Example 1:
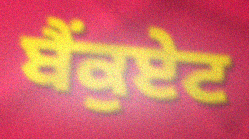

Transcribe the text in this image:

ਬੈਂਕੁਏਟ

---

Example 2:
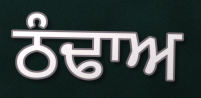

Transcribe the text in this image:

ਠੰਢਾਅ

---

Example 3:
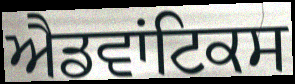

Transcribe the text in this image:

ਐਡਵਾਂਟਿਕਸ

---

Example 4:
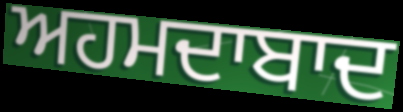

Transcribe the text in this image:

ਅਹਮਦਾਬਾਦ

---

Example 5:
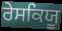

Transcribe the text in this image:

ਰੇਸਕਿਯੂ